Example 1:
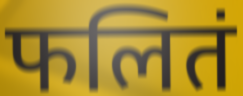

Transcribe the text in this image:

फलितं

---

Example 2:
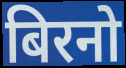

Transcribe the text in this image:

बिरनो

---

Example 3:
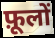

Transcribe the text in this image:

फ़ूलों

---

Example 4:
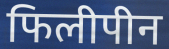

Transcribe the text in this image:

फिलीपीन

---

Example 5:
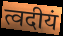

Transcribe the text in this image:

त्वदीयं